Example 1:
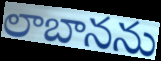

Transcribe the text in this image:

లాబానను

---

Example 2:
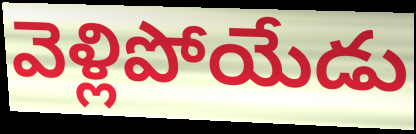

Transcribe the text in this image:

వెళ్లిపోయేడు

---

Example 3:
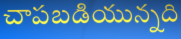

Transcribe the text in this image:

చాపబడియున్నది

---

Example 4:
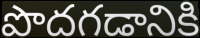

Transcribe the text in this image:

పొదగడానికి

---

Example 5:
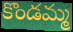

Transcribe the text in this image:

కొండమ్మ